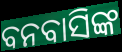
ବନବାସିଙ୍କ